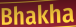
Bhakha